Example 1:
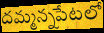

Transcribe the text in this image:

దమ్మన్నపేటలో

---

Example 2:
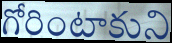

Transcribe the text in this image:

గోరింటాకుని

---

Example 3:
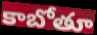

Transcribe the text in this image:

కాబోతూ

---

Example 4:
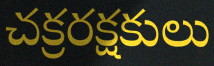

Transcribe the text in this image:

చక్రరక్షకులు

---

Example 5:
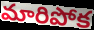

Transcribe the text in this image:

మారిపోక